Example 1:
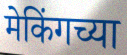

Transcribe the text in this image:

मेकिंगच्या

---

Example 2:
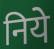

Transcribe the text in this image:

निये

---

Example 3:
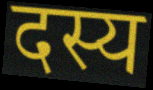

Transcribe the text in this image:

दस्य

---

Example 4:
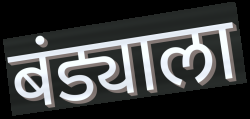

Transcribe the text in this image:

बंड्याला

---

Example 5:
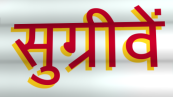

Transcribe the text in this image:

सुग्रीवें